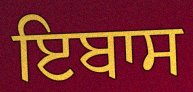
ਇਬਾਸ